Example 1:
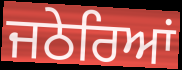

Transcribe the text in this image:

ਜਠੇਰਿਆਂ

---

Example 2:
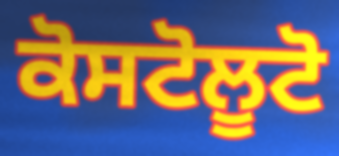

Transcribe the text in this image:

ਕੋਸਟੋਲੂਟੋ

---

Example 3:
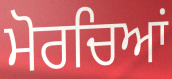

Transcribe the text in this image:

ਮੋਰਚਿਆਂ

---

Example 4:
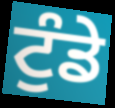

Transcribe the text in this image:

ਟੁੰਡੇ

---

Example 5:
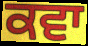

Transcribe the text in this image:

ਕਵਾ